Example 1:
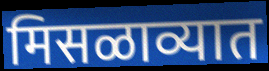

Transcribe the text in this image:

मिसळाव्यात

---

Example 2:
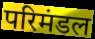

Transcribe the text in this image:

परिमंडल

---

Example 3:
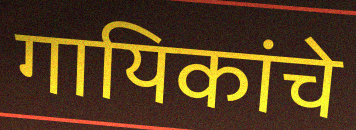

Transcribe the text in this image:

गायिकांचे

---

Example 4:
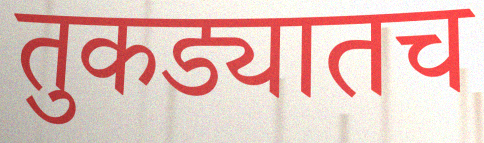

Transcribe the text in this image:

तुकड्यातच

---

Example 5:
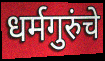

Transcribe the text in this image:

धर्मगुरुंचे